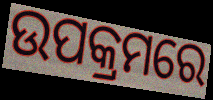
ଉପକ୍ରମରେ